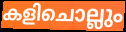
കളിചൊല്ലും